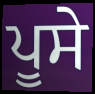
ਪੂਸੇ